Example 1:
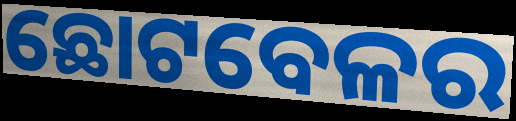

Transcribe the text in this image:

ଛୋଟବେଳର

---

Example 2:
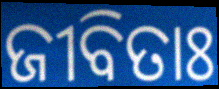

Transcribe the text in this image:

ଜୀବିତାଃ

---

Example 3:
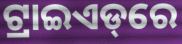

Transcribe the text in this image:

ଟ୍ରାଇଏଡ୍‌ରେ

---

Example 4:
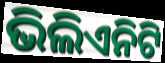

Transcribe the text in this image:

ଭିଲିଏନିଟି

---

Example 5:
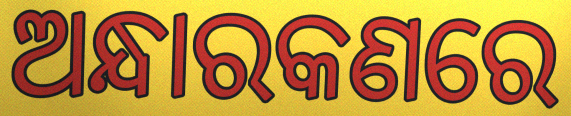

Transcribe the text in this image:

ଅନ୍ଧାରକଣରେ